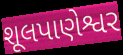
શૂલપાણેશ્વર